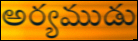
అర్యముడు